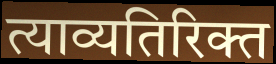
त्याव्यतिरिक्त